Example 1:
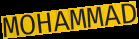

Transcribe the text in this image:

MOHAMMAD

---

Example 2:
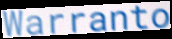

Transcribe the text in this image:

Warranto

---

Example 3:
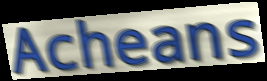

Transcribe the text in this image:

Acheans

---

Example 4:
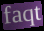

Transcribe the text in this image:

faqt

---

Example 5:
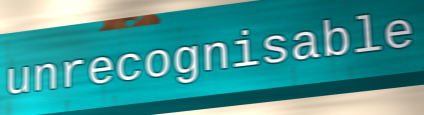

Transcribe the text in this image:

unrecognisable